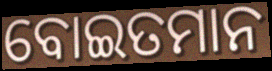
ବୋଇତମାନ